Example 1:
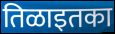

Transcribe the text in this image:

तिळाइतका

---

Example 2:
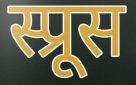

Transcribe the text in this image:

स्प्रूस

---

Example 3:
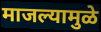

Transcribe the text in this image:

माजल्यामुळे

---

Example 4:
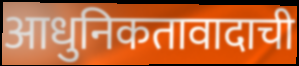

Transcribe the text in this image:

आधुनिकतावादाची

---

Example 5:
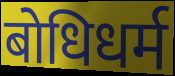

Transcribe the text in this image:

बोधिधर्म